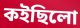
কইছিলো